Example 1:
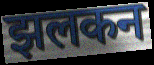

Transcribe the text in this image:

झलकन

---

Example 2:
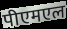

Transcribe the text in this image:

पीएमएल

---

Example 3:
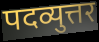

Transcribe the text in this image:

पदव्युत्तर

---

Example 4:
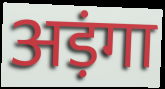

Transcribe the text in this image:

अड़ंगा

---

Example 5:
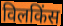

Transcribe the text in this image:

विलकिंस